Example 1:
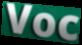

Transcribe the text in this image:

Voc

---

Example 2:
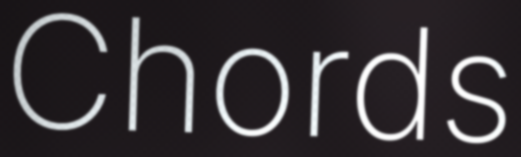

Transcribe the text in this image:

Chords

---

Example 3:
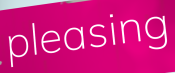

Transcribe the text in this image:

pleasing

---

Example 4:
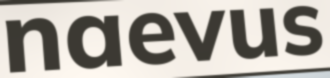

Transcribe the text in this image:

naevus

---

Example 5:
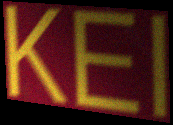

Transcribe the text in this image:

KEI